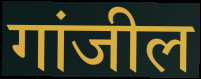
गांजील